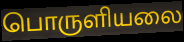
பொருளியலை